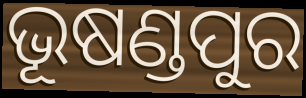
ଭୂଷଣ୍ଡପୁର